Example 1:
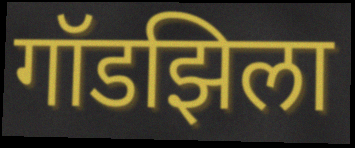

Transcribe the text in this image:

गॉडझिला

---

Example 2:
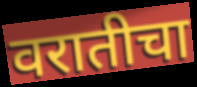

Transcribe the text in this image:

वरातीचा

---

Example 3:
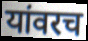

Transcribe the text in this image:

यांवरच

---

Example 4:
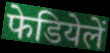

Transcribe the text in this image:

फेडियेलें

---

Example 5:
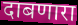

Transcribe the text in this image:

दाबणारा